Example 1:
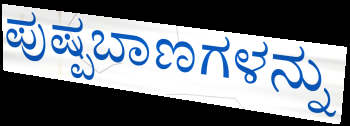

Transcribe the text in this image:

ಪುಷ್ಪಬಾಣಗಳನ್ನು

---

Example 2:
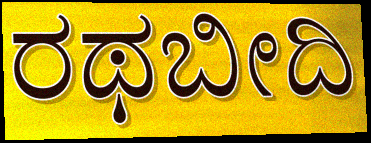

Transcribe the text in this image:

ರಥಬೀದಿ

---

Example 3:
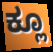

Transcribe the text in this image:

ಕ್ಲೂ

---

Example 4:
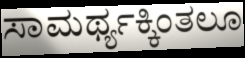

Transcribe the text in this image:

ಸಾಮರ್ಥ್ಯಕ್ಕಿಂತಲೂ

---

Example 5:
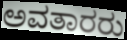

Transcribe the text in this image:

ಅವತಾರರು